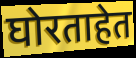
घोरताहेत